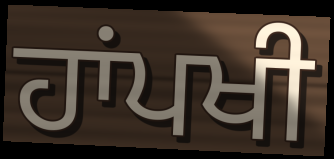
ਹਾਂਪਖੀ